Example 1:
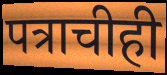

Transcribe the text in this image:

पत्राचीही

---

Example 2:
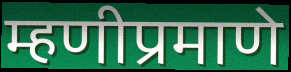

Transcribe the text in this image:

म्हणीप्रमाणे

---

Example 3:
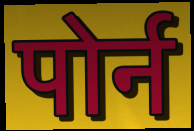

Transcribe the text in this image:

पोर्न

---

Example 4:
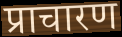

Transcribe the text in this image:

प्राचारण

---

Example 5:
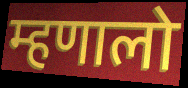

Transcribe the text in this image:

म्हणालो